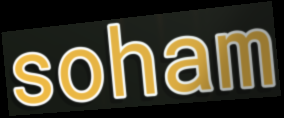
soham